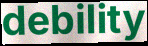
debility